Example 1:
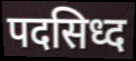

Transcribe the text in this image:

पदसिध्द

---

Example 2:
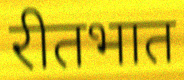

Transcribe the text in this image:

रीतभात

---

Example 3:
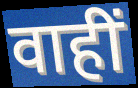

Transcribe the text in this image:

वाहीं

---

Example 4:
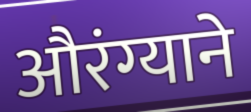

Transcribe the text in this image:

औरंग्याने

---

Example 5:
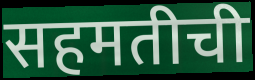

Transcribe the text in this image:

सहमतीची